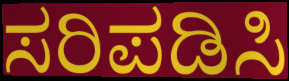
ಸರಿಪಡಿಸಿ